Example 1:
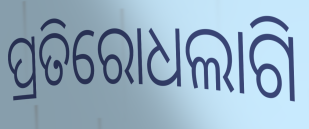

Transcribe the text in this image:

ପ୍ରତିରୋଧଲାଗି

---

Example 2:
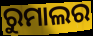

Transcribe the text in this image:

ରୁମାଲର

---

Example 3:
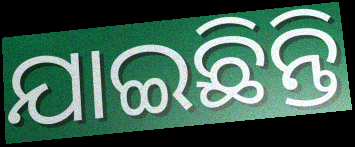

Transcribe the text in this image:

ଯାଇଛିନ୍ତି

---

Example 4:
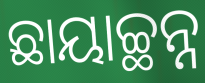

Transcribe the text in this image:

ଛାୟାଚ୍ଛନ୍ନ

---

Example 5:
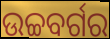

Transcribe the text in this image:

ଉଚ୍ଚବର୍ଗର